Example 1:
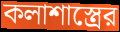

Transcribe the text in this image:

কলাশাস্ত্রের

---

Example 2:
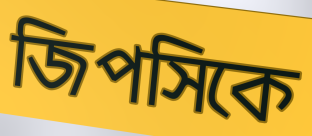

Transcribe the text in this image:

জিপসিকে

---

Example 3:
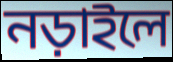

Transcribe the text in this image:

নড়াইলে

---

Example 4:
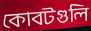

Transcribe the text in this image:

কোবটগুলি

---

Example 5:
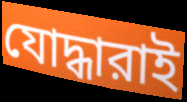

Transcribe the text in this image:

যোদ্ধারাই